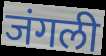
जंगली